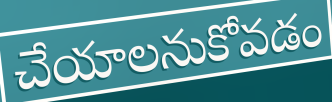
చేయాలనుకోవడం